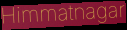
Himmatnagar